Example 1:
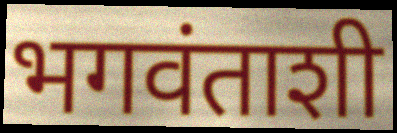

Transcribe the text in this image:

भगवंताशी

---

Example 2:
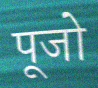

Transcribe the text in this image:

पूजो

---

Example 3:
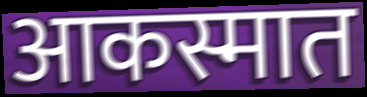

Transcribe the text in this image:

आकस्मात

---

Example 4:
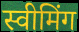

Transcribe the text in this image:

स्वीमिंग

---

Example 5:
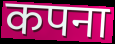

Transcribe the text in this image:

कपना